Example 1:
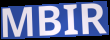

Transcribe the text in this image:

MBIR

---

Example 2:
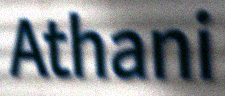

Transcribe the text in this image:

Athani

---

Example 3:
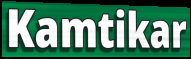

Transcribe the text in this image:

Kamtikar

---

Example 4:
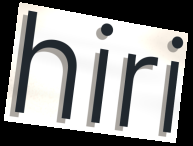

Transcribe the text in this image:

hiri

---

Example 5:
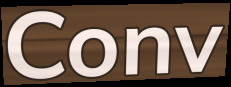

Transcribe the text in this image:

Conv